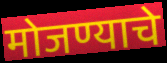
मोजण्याचे